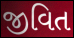
જીવિત